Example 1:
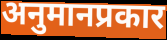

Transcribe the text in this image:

अनुमानप्रकार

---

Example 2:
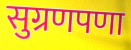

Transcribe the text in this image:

सुग्रणपणा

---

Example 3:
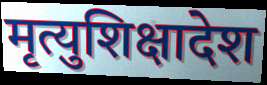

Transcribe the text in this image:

मृत्युशिक्षादेश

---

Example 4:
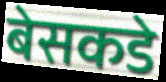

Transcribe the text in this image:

बेसकडे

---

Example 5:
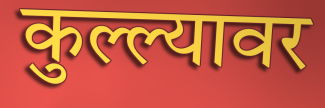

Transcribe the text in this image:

कुल्ल्यावर